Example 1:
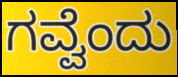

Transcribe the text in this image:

ಗವ್ವೆಂದು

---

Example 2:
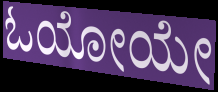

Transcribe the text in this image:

ಓಯೋಯೇ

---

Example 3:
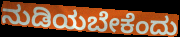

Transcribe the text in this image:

ನುಡಿಯಬೇಕೆಂದು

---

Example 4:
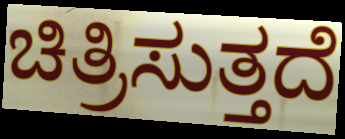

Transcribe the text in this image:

ಚಿತ್ರಿಸುತ್ತದೆ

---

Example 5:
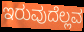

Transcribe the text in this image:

ಇರುವುದೆಲ್ಲವ